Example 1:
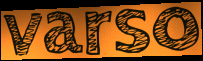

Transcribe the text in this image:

varso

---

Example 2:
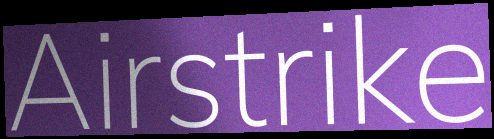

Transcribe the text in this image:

Airstrike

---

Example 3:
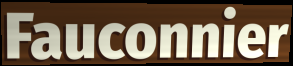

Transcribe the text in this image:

Fauconnier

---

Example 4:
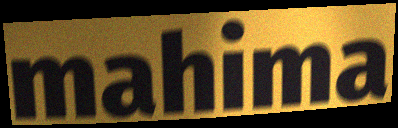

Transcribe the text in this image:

mahima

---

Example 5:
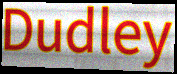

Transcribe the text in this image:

Dudley